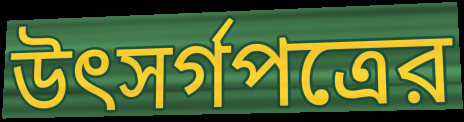
উৎসর্গপত্রের